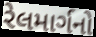
રેલમાર્ગનો